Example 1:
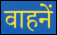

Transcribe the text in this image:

वाहनें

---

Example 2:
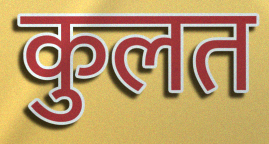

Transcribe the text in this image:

कुलत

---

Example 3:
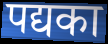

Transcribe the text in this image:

पद्यका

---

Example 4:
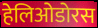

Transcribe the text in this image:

हेलिओडोरस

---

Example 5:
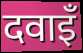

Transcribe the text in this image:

दवाइँ